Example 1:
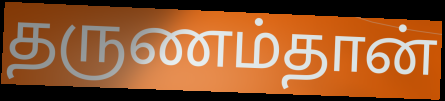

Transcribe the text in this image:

தருணம்தான்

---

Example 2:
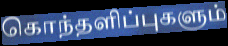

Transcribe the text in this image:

கொந்தளிப்புகளும்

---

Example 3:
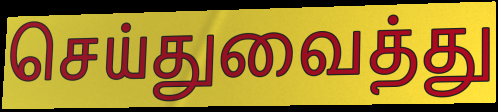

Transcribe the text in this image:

செய்துவைத்து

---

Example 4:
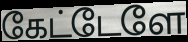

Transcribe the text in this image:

கேட்டேளே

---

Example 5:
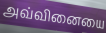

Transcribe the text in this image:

அவ்வினையை